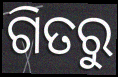
ଗିତରୁ